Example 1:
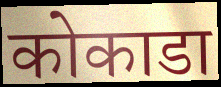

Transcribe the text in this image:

कोकाडा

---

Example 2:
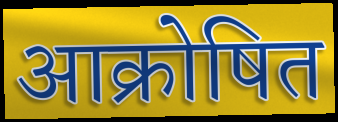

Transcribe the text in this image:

आक्रोषित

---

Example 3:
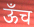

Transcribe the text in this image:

ऊँच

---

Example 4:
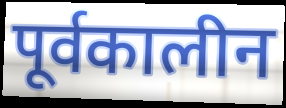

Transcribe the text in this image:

पूर्वकालीन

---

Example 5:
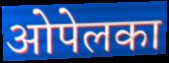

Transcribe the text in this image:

ओपेलका